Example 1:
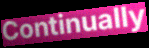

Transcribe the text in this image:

Continually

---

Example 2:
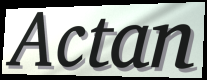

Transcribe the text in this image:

Actan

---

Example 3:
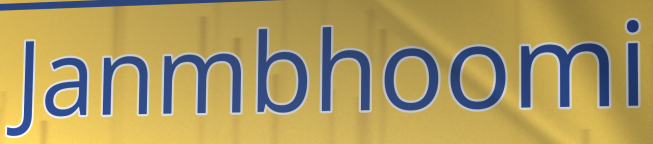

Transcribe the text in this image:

Janmbhoomi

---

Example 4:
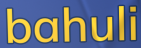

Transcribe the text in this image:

bahuli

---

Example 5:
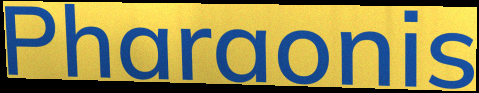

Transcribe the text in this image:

Pharaonis